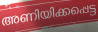
അണിയിക്കപ്പെട്ട